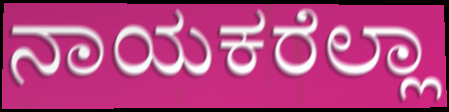
ನಾಯಕರೆಲ್ಲಾ